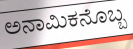
ಅನಾಮಿಕನೊಬ್ಬ